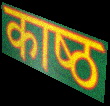
काष्‍ठ